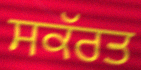
ਸਕੱਰਤ